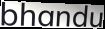
bhandu